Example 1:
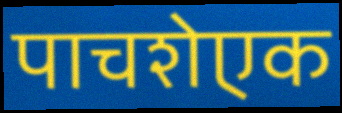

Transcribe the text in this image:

पाचशेएक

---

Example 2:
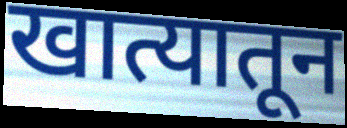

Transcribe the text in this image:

खात्यातून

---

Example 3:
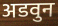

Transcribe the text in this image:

अडवुन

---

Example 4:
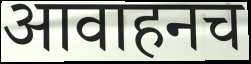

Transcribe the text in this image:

आवाहनच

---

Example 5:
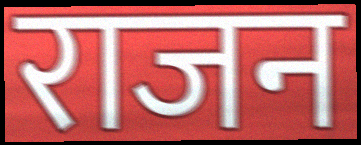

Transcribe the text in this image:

राजन